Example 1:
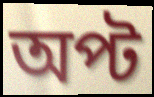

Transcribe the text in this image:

অপ্ট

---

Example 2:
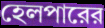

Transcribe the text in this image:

হেলপারের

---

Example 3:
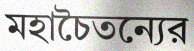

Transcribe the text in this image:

মহাচৈতন্যের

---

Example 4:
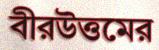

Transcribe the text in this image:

বীরউত্তমের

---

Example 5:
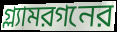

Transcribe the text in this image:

গ্ল্যামরগনের